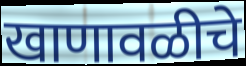
खाणावळीचे